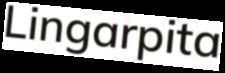
Lingarpita